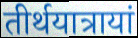
तीर्थयात्रायां